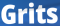
Grits